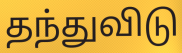
தந்துவிடு